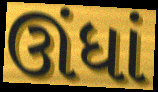
ઊંધાં